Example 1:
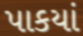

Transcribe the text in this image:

પાકયાં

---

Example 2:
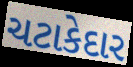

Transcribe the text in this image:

ચટાકેદાર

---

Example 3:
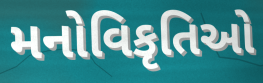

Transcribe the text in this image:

મનોવિકૃતિઓ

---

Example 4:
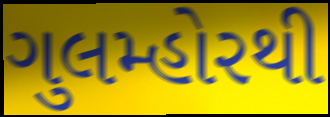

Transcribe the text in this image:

ગુલમ્હોરથી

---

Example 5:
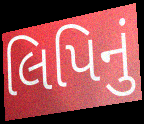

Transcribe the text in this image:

લિપિનું